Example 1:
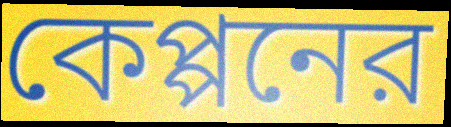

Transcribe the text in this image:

কেপ্পনের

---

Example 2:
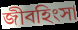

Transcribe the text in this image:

জীবহিংসা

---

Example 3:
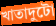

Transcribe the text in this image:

খাতাদুটো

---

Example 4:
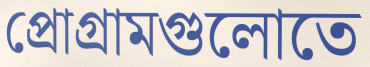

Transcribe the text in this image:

প্রোগ্রামগুলোতে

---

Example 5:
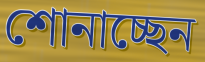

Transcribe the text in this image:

শোনাচ্ছেন